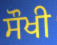
ਸੌਖੀ